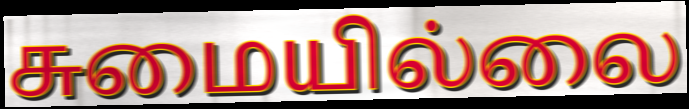
சுமையில்லை